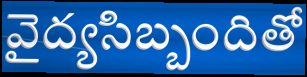
వైద్యసిబ్బందితో